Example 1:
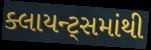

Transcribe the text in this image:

ક્લાયન્ટ્સમાંથી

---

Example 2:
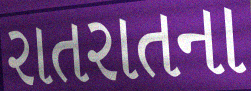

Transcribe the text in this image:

રાતરાતના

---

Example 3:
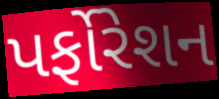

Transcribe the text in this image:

પર્ફોરેશન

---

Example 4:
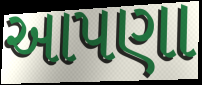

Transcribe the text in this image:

આપણા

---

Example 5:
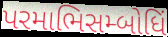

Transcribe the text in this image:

પરમાભિસમ્બોધિં